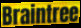
Braintree